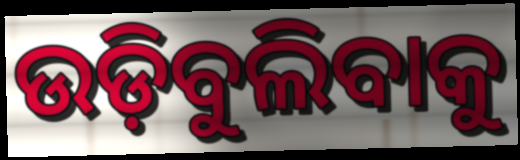
ଉଡ଼ିବୁଲିବାକୁ